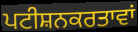
ਪਟੀਸ਼ਨਕਰਤਾਵਾਂ